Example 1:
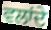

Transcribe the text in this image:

ਵਲਾਂਦੇ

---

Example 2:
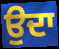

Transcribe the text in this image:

ਉਦਾ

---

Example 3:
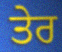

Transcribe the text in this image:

ਤੇਰ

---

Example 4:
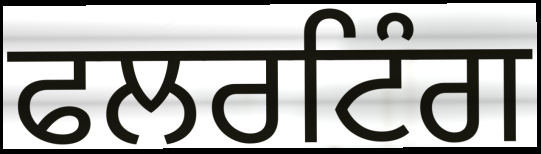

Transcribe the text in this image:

ਫਲਰਟਿੰਗ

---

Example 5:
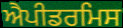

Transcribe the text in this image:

ਐਪੀਡਰਮਿਸ